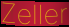
Zeller